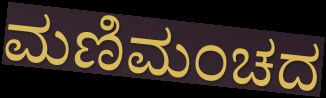
ಮಣಿಮಂಚದ